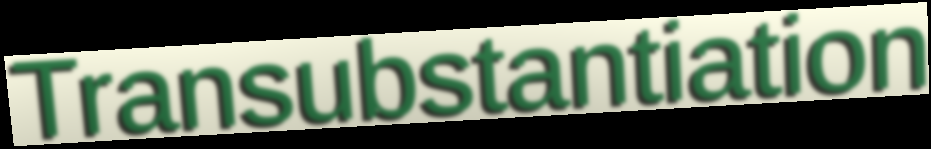
Transubstantiation